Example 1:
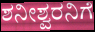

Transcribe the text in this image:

ಶನೀಶ್ವರನಿಗೆ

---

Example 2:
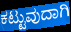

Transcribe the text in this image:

ಕಟ್ಟುವುದಾಗಿ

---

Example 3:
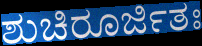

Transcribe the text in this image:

ಶುಚಿರೂರ್ಜಿತಃ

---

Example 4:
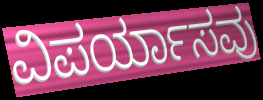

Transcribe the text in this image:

ವಿಪರ್ಯಾಸವು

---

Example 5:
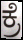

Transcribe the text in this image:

ಕ್ರೆ